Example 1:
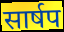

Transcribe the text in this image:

सार्षप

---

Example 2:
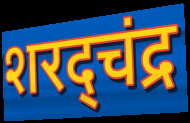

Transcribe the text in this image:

शरद्चंद्र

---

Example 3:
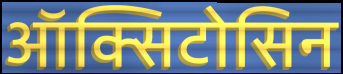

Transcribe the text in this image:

ऑक्सिटोसिन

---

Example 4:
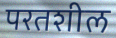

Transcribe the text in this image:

परतशील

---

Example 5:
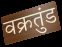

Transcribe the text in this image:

वक्रतुंड